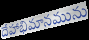
దేహాభిమానమును